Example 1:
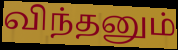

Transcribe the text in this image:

விந்தனும்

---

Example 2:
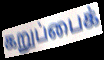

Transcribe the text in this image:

கறுப்பைக்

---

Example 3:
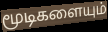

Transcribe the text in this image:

மூடிகளையும்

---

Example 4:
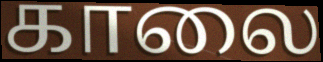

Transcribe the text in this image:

காலை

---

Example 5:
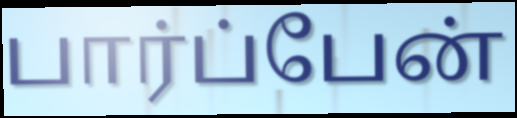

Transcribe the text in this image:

பார்ப்பேன்